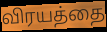
விரயத்தை